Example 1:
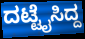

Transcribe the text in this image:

ದಟ್ಟೈಸಿದ್ದ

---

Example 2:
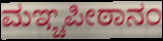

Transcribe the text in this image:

ಮಞ್ಚಪೀಠಾನಂ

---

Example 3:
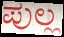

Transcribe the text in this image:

ಪುಲ್ಲ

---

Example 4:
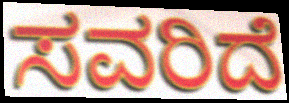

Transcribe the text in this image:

ಸವರಿದೆ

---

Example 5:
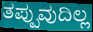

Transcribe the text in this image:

ತಪ್ಪುವುದಿಲ್ಲ